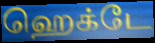
ஹெக்டே